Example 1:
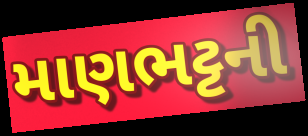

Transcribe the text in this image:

માણભટ્ટની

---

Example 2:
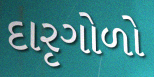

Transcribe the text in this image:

દારૃગોળો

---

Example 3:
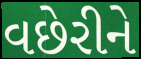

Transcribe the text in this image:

વછેરીને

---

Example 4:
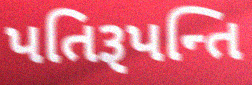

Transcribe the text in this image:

પતિરૂપન્તિ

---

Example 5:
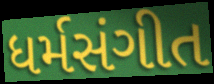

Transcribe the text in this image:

ધર્મસંગીત